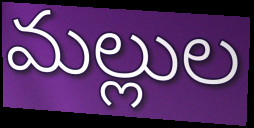
మల్లుల